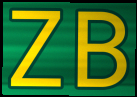
ZB